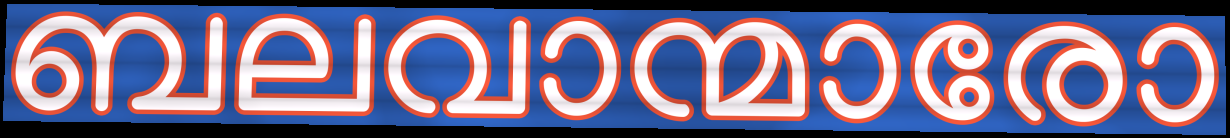
ബലവാന്മാരോ